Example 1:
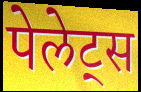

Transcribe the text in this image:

पेलेट्स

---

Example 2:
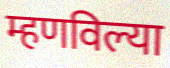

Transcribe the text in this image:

म्हणविल्या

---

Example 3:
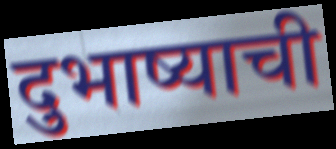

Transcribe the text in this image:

दुभाष्याची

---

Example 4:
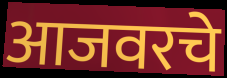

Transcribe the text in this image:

आजवरचे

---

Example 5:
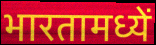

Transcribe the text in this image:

भारतामध्यें